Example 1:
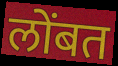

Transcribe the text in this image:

लोंबत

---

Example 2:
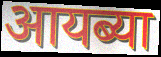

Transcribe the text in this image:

आयब्या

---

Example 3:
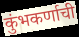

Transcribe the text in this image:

कुंभकर्णाची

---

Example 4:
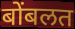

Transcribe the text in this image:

बोंबलत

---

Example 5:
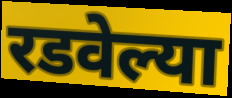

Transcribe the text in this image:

रडवेल्या